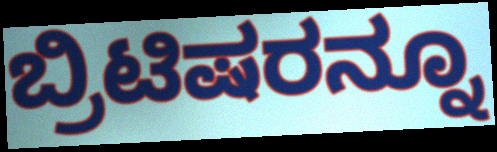
ಬ್ರಿಟಿಷರನ್ನೂ